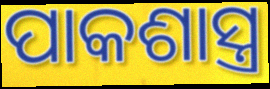
ପାକଶାସ୍ତ୍ର